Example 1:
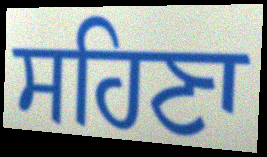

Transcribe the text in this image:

ਸਹਿਣਾ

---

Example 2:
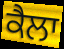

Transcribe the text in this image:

ਕੈਲਾ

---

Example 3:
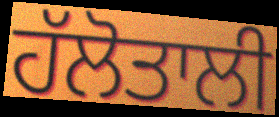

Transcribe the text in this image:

ਹੱਲੋਤਾਲੀ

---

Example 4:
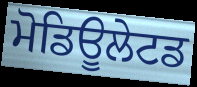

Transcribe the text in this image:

ਮੋਡਿਊਲੇਟਡ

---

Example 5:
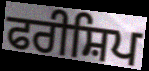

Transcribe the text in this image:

ਫਰੀਸ਼ਿਪ